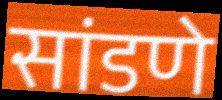
सांडणे